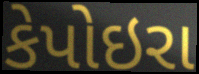
કેપોઇરા